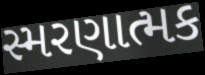
સ્મરણાત્મક